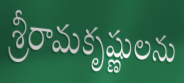
శ్రీరామకృష్ణులను